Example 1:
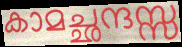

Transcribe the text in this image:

കാമച്ഛന്ദസ്സ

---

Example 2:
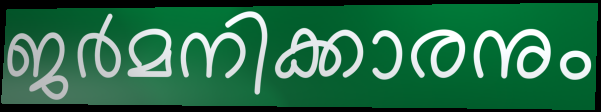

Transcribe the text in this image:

ജർമനിക്കാരനും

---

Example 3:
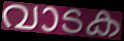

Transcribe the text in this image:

വാടക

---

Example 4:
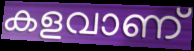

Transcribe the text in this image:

കളവാണ്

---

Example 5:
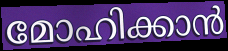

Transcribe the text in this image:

മോഹിക്കാൻ